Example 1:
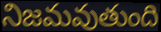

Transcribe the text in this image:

నిజమవుతుంది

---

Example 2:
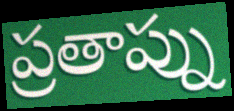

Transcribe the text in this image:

ప్రతాప్ను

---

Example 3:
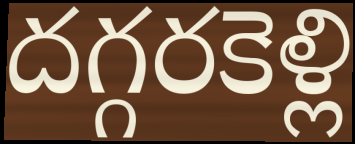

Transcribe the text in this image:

దగ్గరకెళ్లి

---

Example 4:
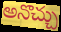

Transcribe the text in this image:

అనొచ్చు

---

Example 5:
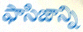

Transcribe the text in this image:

ఫాసిజాన్ని